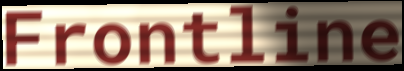
Frontline